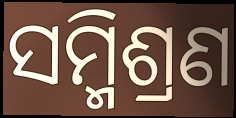
ସମ୍ମିଶ୍ରଣ